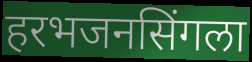
हरभजनसिंगला